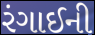
રંગાઈની